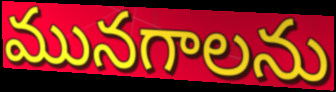
మునగాలను